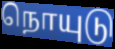
நொயுடு